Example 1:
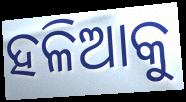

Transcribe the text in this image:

ହଳିଆକୁ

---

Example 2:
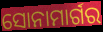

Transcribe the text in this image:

ସୋନାମାର୍ଗର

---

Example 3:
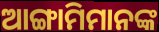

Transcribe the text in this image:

ଆଙ୍ଗାମିମାନଙ୍କ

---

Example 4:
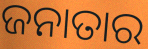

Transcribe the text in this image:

ଜନାତାର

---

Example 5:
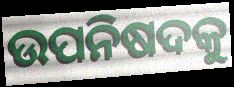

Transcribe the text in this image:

ଉପନିଷଦକୁ